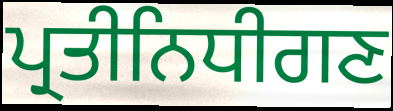
ਪ੍ਰਤੀਨਿਧੀਗਣ